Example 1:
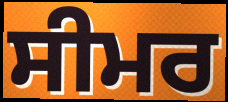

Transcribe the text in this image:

ਸੀਮਰ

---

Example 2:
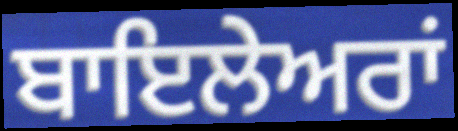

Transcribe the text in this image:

ਬਾਇਲੇਅਰਾਂ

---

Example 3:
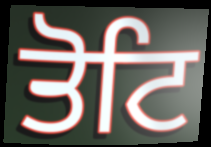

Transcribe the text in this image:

ਤੋਟਿ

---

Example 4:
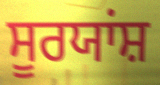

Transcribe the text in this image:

ਸੂਰਯਾਂਸ਼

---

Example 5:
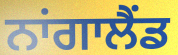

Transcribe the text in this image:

ਨਾਂਗਾਲੈਂਡ